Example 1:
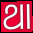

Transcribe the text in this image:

ଥା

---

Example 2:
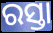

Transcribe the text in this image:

ରସ୍ତା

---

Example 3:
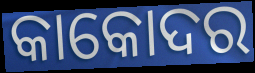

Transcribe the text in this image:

କାକୋଦର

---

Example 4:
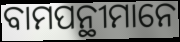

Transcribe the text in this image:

ବାମପନ୍ଥୀମାନେ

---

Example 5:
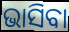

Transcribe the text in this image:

ଭାସିବା